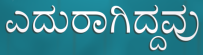
ಎದುರಾಗಿದ್ದವು